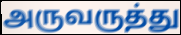
அருவருத்து